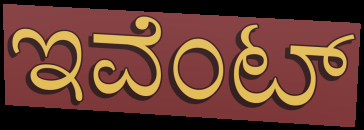
ಇವೆಂಟ್